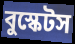
বুস্কেটস